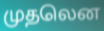
முதலென